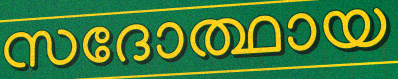
സദോത്ഥായ